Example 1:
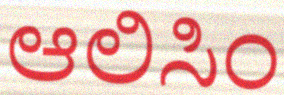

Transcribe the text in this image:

ಆಲಿಸಿಂ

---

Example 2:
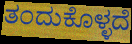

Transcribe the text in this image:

ತಂದುಕೊಳ್ಳದೆ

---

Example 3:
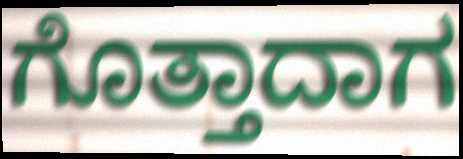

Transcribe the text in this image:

ಗೊತ್ತಾದಾಗ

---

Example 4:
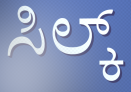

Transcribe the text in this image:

ಸಿಲ್ಕ್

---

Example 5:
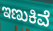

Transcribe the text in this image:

ಇಣುಕಿವೆ